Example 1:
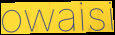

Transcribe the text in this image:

owaisi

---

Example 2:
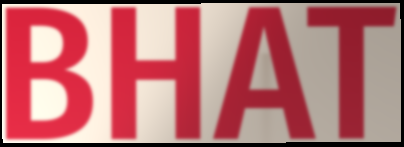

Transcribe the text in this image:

BHAT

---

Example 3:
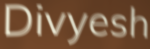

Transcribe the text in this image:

Divyesh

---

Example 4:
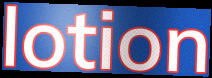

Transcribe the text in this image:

lotion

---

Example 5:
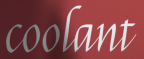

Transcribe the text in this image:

coolant